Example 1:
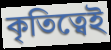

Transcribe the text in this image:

কৃতিত্বেই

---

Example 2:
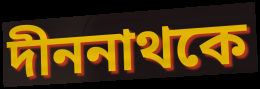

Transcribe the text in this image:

দীননাথকে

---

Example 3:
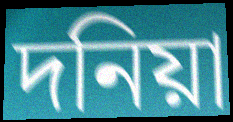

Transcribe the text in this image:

দনিয়া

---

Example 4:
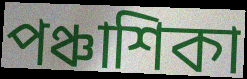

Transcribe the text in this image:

পঞ্চাশিকা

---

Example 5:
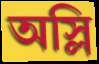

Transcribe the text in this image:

অস্লি